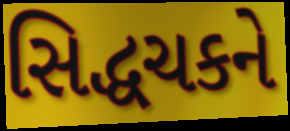
સિદ્ધચકને